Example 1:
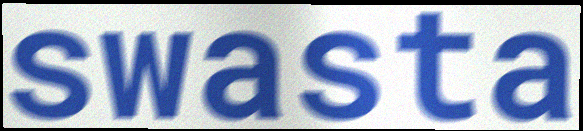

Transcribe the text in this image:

swasta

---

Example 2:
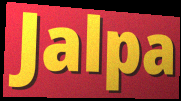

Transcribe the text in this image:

Jalpa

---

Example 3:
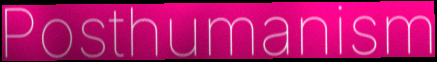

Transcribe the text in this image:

Posthumanism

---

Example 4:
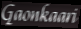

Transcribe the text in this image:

Gaonkaari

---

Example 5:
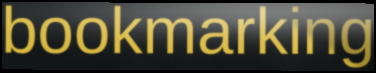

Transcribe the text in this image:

bookmarking